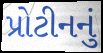
પ્રોટીનનું